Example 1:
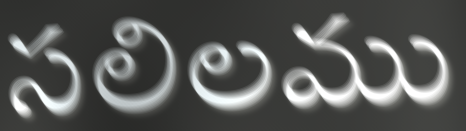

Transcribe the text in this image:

సలిలము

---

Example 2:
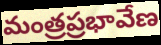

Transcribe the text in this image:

మంత్రప్రభావేణ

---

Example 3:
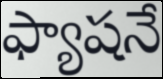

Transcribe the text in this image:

ఫ్యాషనే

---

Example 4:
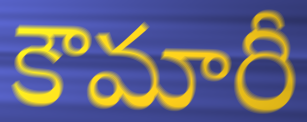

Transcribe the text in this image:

కౌమారీ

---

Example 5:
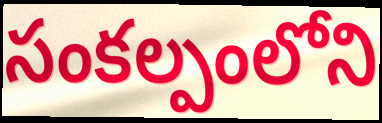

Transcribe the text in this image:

సంకల్పంలోని